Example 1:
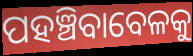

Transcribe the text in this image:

ପହଞ୍ଚିବାବେଳକୁ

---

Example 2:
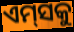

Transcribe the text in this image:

ଏମ୍‌ସକୁ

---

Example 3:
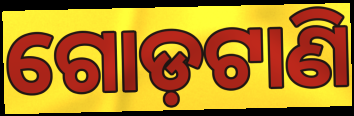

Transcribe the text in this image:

ଗୋଡ଼ଟାଣି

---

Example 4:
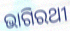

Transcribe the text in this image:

ଭାଗିରଥୀ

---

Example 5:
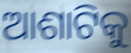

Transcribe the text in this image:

ଆଶାଟିକୁ